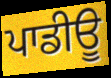
ਪਾਡੀਊ